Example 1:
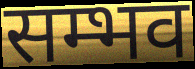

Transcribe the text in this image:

सम्भव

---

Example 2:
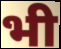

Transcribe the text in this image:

भी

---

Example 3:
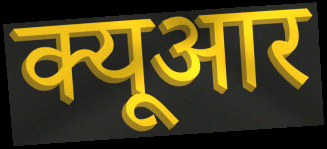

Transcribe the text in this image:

क्यूआर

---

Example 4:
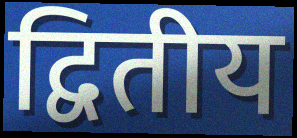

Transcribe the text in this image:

द्वितीय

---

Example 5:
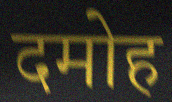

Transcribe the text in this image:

दमोह